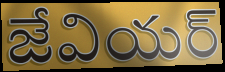
జేవియర్